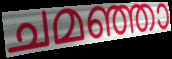
ചമഞ്ഞാ